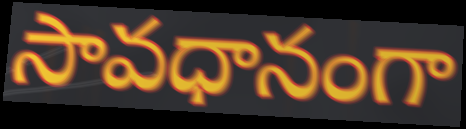
సావధానంగా